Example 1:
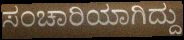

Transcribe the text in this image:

ಸಂಚಾರಿಯಾಗಿದ್ದು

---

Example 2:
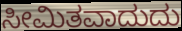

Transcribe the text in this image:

ಸೀಮಿತವಾದುದು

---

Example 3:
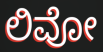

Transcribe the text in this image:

ಲಿವೋ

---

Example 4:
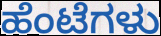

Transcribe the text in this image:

ಹೆಂಟೆಗಳು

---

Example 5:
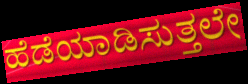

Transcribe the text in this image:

ಹೆಡೆಯಾಡಿಸುತ್ತಲೇ